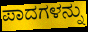
ಪಾದಗಳನ್ನು